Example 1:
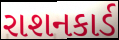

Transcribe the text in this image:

રાશનકાર્ડ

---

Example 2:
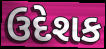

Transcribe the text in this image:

ઉદેશક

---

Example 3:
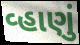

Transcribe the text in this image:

વ્હાણું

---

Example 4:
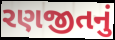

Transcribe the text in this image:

રણજીતનું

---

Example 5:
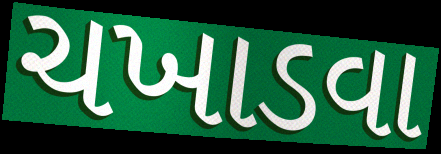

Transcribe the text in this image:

ચખાડવા